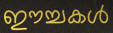
ഈച്ചകൾ